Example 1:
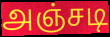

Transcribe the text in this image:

அஞ்சடி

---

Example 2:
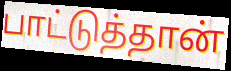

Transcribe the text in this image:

பாட்டுத்தான்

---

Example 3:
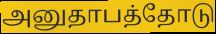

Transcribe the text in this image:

அனுதாபத்தோடு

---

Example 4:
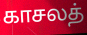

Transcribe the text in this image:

காசலத்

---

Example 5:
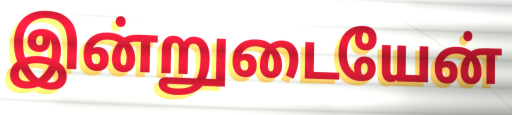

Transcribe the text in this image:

இன்றுடையேன்